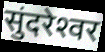
सुंदरेश्वर